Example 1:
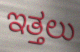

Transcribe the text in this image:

ಇತ್ತಲು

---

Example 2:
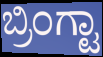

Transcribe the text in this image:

ಬ್ರಿಂಗ್ಟಾ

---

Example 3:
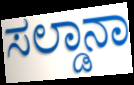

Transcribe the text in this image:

ಸಲ್ಡಾನಾ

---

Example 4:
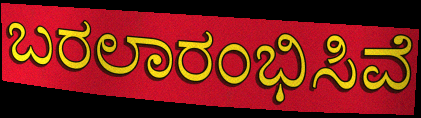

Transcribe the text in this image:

ಬರಲಾರಂಭಿಸಿವೆ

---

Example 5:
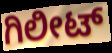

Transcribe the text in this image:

ಗಿಲೀಟ್